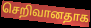
செறிவானதாக